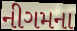
નીગમના